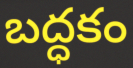
బద్ధకం